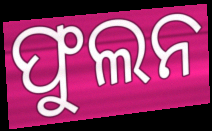
ଫୁଲନ